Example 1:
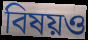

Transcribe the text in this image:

বিষয়ও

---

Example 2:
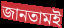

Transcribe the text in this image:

জানতামই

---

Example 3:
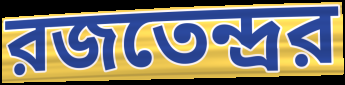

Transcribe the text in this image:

রজতেন্দ্রর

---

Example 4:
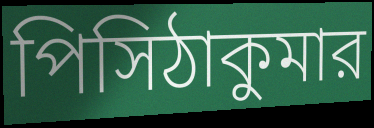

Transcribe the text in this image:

পিসিঠাকুমার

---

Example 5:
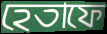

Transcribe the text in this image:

হেতাফে